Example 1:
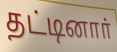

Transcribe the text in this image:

தட்டினார்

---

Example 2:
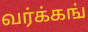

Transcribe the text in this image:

வர்க்கங்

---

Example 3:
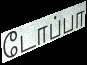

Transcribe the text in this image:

டோப்பா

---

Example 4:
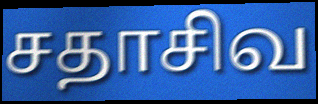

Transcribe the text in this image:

சதாசிவ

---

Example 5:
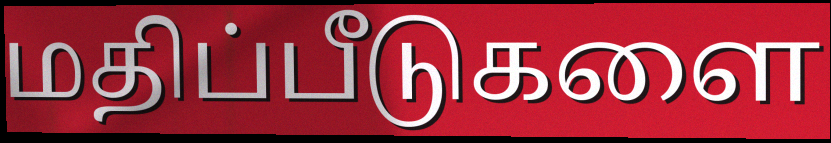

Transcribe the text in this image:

மதிப்பீடுகளை